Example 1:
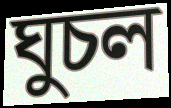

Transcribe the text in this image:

ঘুচল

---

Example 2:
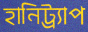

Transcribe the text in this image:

হানিট্র্যাপ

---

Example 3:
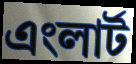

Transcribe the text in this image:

এংলার্ট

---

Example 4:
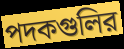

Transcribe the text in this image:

পদকগুলির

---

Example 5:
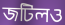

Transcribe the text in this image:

জটিলও